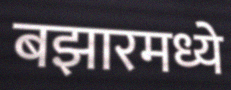
बझारमध्ये